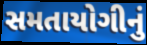
સમતાયોગીનું